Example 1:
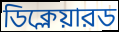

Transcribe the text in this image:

ডিক্লেয়ারড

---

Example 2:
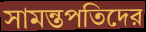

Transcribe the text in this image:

সামন্তপতিদের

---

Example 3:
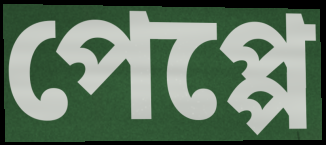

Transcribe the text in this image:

পেপ্পে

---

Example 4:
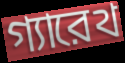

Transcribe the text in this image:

গ্যারেথ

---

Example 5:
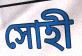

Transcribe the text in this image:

সোহী